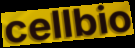
cellbio